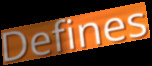
Defines